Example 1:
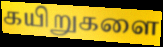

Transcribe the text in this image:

கயிறுகளை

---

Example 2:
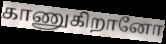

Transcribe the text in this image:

காணுகிறானோ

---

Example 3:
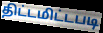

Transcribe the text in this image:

திட்டமிட்டபடி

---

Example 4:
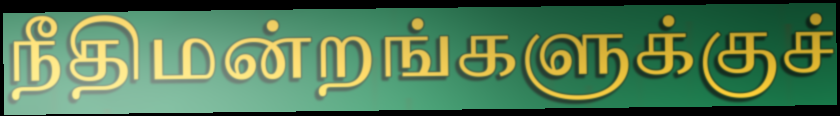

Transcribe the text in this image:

நீதிமன்றங்களுக்குச்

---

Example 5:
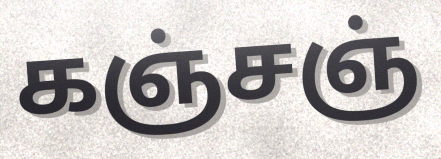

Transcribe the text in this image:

கஞ்சஞ்